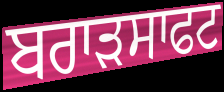
ਬਰਾੜਸਾਫਟ